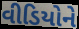
વીડિયોને